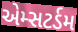
એમ્સટર્ડમ